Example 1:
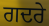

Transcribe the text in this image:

ਗਦਰੇ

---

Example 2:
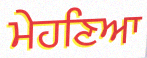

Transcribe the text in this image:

ਮੇਹਣਿਆ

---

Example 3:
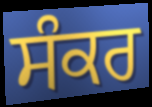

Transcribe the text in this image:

ਸੰਕਰ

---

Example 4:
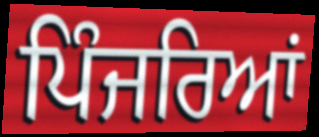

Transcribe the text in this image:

ਪਿੰਜਰਿਆਂ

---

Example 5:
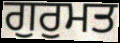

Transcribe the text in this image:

ਗੁਰੁਮਤ